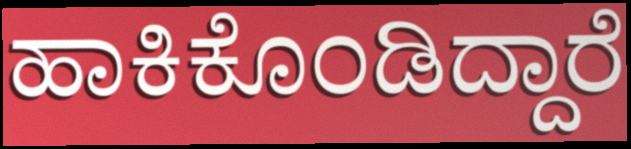
ಹಾಕಿಕೊಂಡಿದ್ದಾರೆ